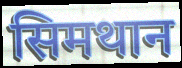
सिमथान